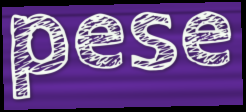
pese